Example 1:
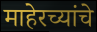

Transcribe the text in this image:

माहेरच्यांचे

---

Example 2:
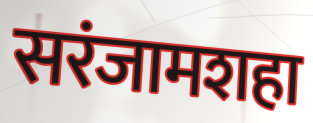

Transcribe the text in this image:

सरंजामशहा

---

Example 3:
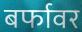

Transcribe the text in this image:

बर्फावर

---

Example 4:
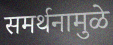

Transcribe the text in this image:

समर्थनामुळे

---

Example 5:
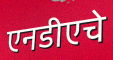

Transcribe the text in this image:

एनडीएचे